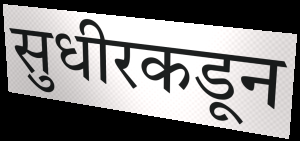
सुधीरकडून